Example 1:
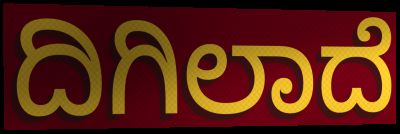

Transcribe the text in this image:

ದಿಗಿಲಾದೆ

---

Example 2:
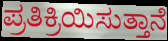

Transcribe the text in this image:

ಪ್ರತಿಕ್ರಿಯಿಸುತ್ತಾನೆ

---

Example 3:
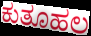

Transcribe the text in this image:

ಕುತೂಹಲ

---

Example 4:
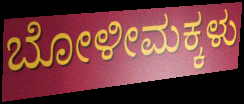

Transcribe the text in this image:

ಬೋಳೀಮಕ್ಕಳು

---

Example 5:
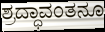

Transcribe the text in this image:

ಶ್ರದ್ಧಾವಂತನೂ